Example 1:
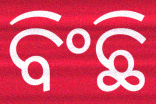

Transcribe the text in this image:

ବିଂଛି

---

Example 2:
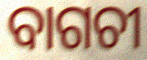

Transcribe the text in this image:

ବାଗଚୀ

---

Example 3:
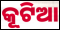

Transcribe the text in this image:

କୂଟିଆ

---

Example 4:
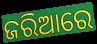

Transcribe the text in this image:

ଜରିଆରେ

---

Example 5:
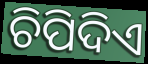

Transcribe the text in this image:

ଚିପିଦିଏ